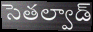
సెతల్వాడ్